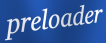
preloader